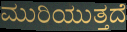
ಮುರಿಯುತ್ತದೆ